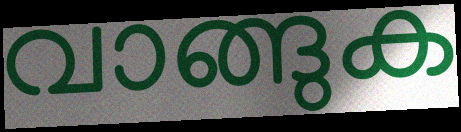
വാങ്ങുക